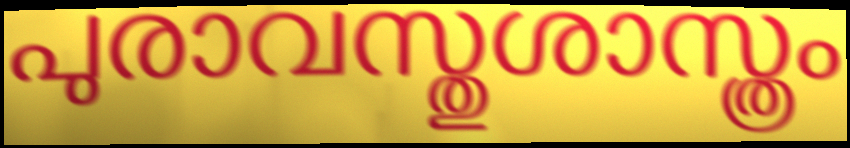
പുരാവസ്തുശാസ്ത്രം